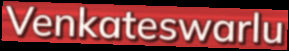
Venkateswarlu